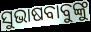
ସୁଭାଷବାବୁଙ୍କୁ